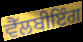
ਵੈੱਲਬੀਇੰਗ